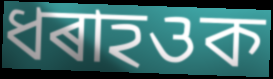
ধৰাহওক